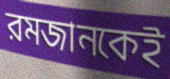
রমজানকেই